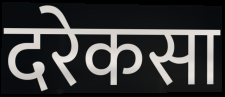
दरेकसा